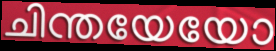
ചിന്തയേയോ